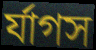
র্যাগস